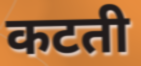
कटती